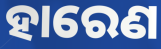
ହାରେଣ